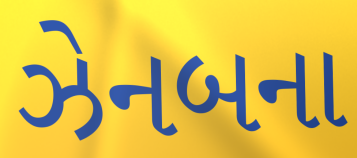
ઝેનબના